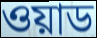
ওয়াড